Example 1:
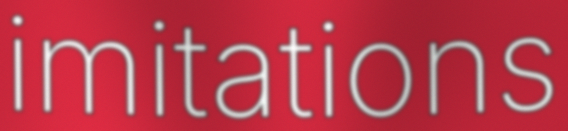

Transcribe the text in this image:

imitations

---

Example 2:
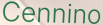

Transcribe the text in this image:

Cennino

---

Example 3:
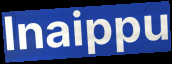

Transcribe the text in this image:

Inaippu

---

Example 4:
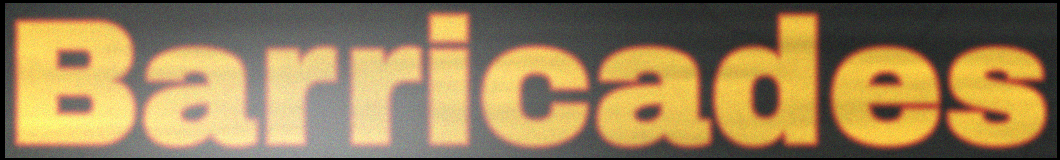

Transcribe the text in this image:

Barricades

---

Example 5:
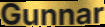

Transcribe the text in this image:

Gunnar